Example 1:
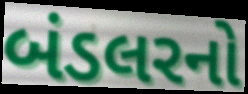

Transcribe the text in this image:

બંડલરનો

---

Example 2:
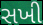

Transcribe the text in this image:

સખી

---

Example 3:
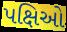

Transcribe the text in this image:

પક્ષિઓ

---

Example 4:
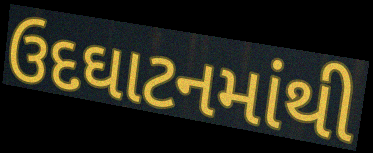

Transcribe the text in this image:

ઉદઘાટનમાંથી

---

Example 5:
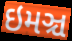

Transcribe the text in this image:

ઇમઞ્ચ